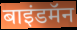
बाइंडमॅन